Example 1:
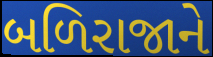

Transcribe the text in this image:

બળિરાજાને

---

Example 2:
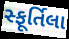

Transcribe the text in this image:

સ્ફૂર્તિલા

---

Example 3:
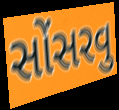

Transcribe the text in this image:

સોંસરવુ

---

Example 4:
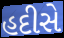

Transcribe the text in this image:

હદીસે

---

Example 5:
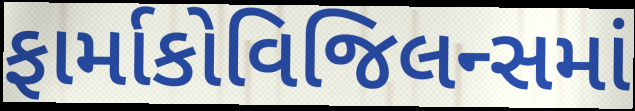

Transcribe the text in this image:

ફાર્માકોવિજિલન્સમાં